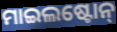
ମାଇଲଷ୍ଟୋନ୍